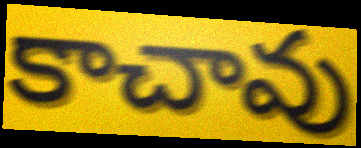
కాచావు